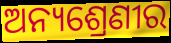
ଅନ୍ୟଶ୍ରେଣୀର